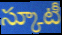
స్కూటీ